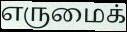
எருமைக்